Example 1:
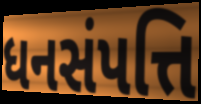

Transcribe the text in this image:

ધનસંપત્તિ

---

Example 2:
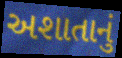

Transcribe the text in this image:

અશાતાનું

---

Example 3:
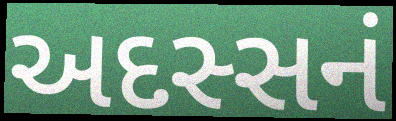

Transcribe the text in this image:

અદસ્સનં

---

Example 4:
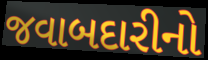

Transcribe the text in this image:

જવાબદારીનો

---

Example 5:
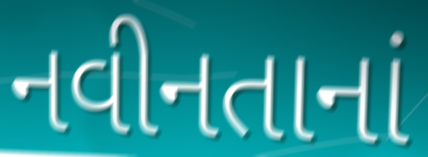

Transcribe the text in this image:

નવીનતાનાં